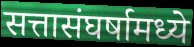
सत्तासंघर्षामध्ये